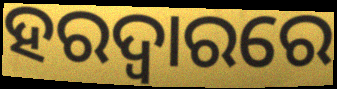
ହରଦ୍ୱାରରେ